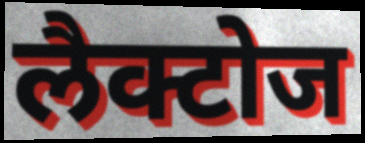
लैक्टोज